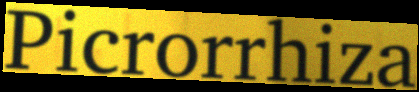
Picrorrhiza